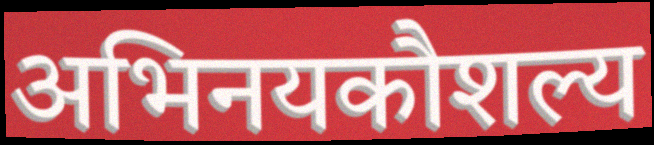
अभिनयकौशल्य